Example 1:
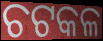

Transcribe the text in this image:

ଚଟକଳ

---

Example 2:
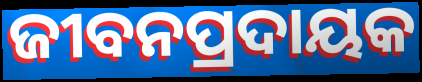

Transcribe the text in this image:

ଜୀବନପ୍ରଦାୟକ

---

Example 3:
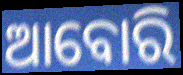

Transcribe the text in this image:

ଆବୋରି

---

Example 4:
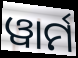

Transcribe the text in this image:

ୱାର୍ମ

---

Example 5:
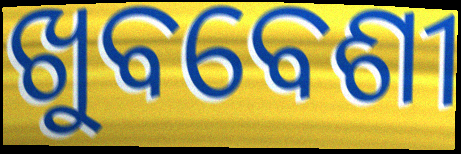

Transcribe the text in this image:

ଖୁବବେଶୀ